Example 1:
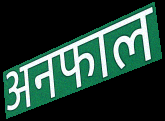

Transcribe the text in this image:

अनफाल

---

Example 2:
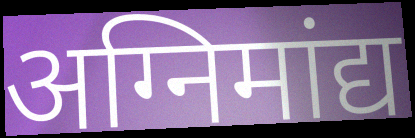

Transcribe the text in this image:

अग्निमांद्य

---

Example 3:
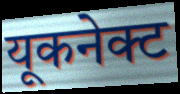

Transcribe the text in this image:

यूकनेक्ट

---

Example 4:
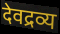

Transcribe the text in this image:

देवद्रव्य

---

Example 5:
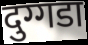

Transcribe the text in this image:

दुग्गडा